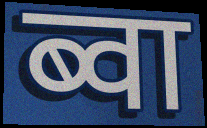
ब्वा